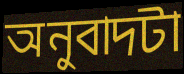
অনুবাদটা